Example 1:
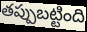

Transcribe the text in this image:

తప్పుబట్టింది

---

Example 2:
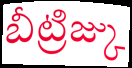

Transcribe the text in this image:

బీట్రిజ్కు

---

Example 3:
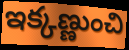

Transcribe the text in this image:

ఇక్కణ్ణుంచి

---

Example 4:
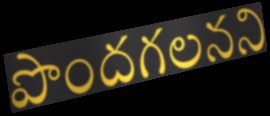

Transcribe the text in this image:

పొందగలనని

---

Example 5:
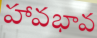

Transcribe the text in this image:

హావభావ